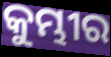
କୁମ୍ଭୀର